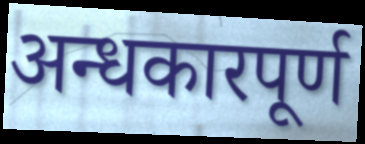
अन्धकारपूर्ण